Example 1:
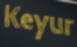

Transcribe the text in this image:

Keyur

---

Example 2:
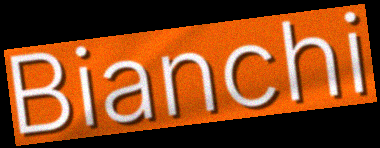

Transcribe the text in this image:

Bianchi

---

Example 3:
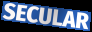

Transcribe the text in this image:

SECULAR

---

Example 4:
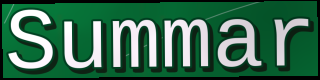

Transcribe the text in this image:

Summar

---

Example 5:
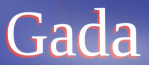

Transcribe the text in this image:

Gada